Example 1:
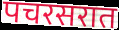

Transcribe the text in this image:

पचरसरात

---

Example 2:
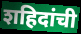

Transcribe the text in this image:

शहिदांची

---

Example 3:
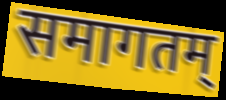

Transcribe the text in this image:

समागतम्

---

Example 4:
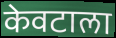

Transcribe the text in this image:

केवटाला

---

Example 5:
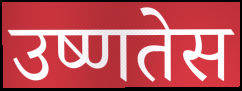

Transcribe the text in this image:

उष्णतेस